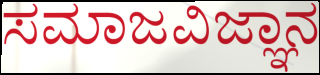
ಸಮಾಜವಿಜ್ಞಾನ